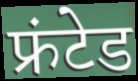
फ्रंटेड